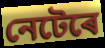
নেটেৰে